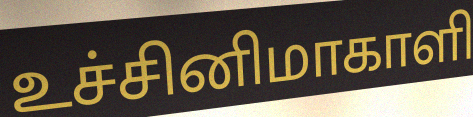
உச்சினிமாகாளி